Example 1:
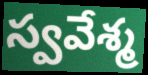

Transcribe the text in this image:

స్వవేశ్మ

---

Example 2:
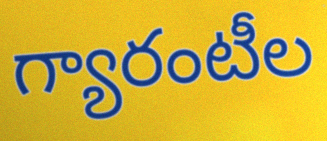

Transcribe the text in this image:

గ్యారంటీల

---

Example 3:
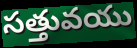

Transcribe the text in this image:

సత్తువయు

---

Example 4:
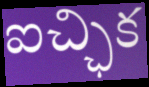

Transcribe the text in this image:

ఐచ్ఛిక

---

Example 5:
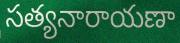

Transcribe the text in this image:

సత్యనారాయణా